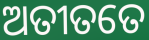
ଅତୀତତେ